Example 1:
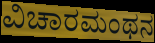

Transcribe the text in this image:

ವಿಚಾರಮಂಥನ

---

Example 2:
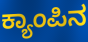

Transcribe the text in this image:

ಕ್ಯಾಂಪಿನ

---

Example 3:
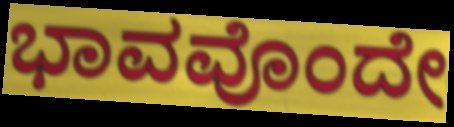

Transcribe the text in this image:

ಭಾವವೊಂದೇ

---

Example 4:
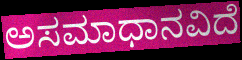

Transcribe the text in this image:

ಅಸಮಾಧಾನವಿದೆ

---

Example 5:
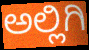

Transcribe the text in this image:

ಅಲ್ಲಿಗಿ